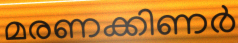
മരണക്കിണർ